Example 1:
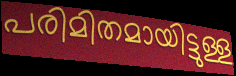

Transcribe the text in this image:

പരിമിതമായിട്ടുള്ള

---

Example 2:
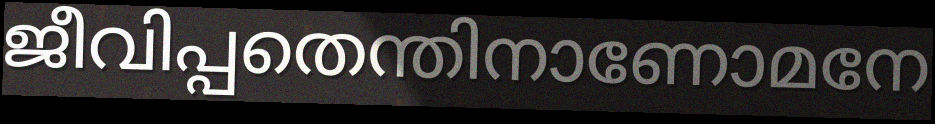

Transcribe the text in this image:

ജീവിപ്പതെന്തിനാണോമനേ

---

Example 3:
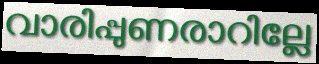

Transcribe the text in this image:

വാരിപ്പുണരാറില്ലേ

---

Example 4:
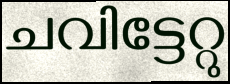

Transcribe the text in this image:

ചവിട്ടേറ്റു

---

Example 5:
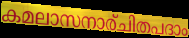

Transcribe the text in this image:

കമലാസനാര്ചിതപദാം